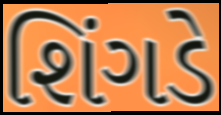
શિંગડે